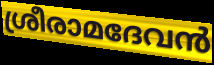
ശ്രീരാമദേവൻ